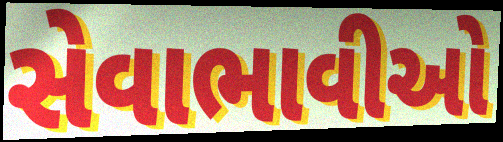
સેવાભાવીઓ